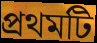
প্রথমটি